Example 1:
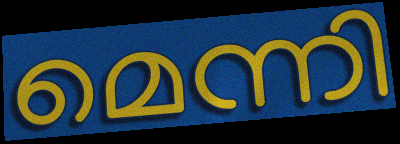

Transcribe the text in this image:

മെന്നി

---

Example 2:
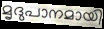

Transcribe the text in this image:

മൃദുപാനമായി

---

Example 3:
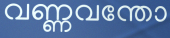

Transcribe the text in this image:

വണ്ണവന്തോ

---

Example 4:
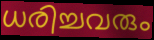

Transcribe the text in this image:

ധരിച്ചവരും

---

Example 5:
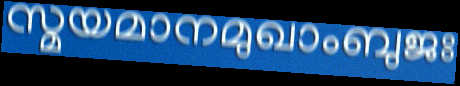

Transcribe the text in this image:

സ്മയമാനമുഖാംബുജഃ